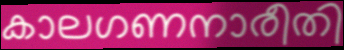
കാലഗണനാരീതി